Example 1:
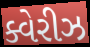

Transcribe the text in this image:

ક્વેરીઝ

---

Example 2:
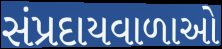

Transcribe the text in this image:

સંપ્રદાયવાળાઓ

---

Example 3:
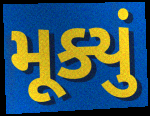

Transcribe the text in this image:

મૂક્યું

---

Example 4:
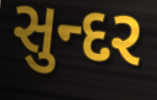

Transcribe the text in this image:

સુન્દર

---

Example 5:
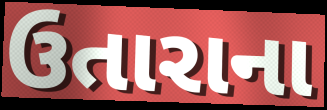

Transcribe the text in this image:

ઉતારાના